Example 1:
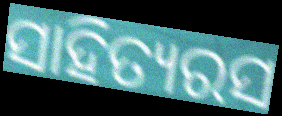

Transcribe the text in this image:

ସାହିତ୍ୟରସ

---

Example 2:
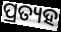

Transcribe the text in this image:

ପ୍ରତ୍ୟହ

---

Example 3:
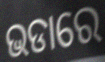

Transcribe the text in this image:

ଭଡାରେ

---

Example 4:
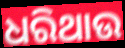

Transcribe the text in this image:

ଧରିଥାଉ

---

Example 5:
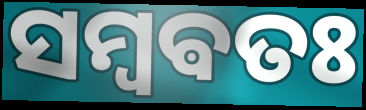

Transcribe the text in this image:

ସମ୍ବଵତଃ